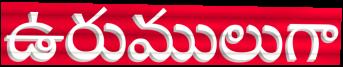
ఉరుములుగా